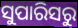
ସୁପାରିସରୁ